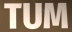
TUM